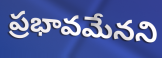
ప్రభావమేనని